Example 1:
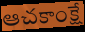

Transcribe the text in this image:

ఆచకాంక్షే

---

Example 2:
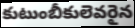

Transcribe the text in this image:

కుటుంబీకులెవరైన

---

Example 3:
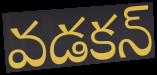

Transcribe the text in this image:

వడకన్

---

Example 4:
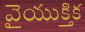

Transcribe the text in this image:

వైయుక్తిక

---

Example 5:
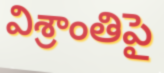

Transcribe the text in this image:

విశ్రాంతిపై